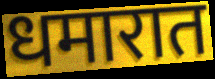
धमारात